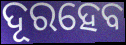
ଦୂରହେବ